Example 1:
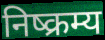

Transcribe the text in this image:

निष्क्रम्य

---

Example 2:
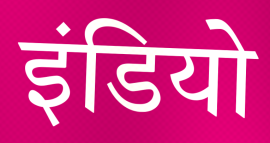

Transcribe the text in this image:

इंडियो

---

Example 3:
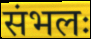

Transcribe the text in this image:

संभलः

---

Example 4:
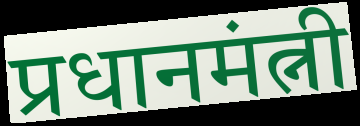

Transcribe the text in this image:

प्रधानमंत्नी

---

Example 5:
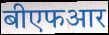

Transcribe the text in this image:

बीएफआर